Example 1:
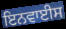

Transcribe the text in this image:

ਇਨਵਾਈਸ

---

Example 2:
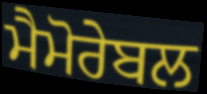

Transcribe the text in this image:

ਮੈਮੋਰੇਬਲ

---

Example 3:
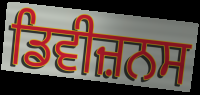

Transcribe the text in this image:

ਡਿਵੀਜ਼ਨਸ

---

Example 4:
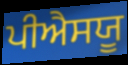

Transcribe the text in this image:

ਪੀਐਸਯੂ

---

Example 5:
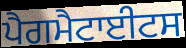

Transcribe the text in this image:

ਪੈਗਮੈਟਾਈਟਸ